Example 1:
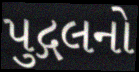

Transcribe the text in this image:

પુદ્ગલનો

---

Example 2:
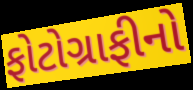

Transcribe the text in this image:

ફોટોગ્રાફીનો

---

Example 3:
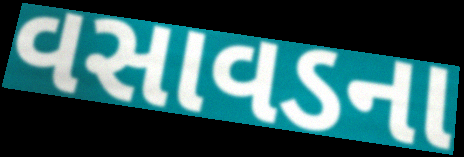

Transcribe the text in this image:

વસાવડના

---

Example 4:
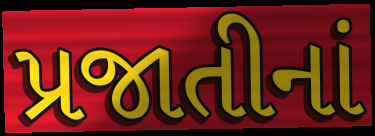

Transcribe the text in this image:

પ્રજાતીનાં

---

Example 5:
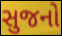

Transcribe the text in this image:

સુજનો